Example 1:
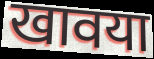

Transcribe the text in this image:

खावया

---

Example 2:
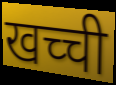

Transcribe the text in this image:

खच्ची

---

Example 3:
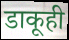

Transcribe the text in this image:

डाकूही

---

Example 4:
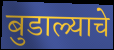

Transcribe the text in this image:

बुडाल्याचे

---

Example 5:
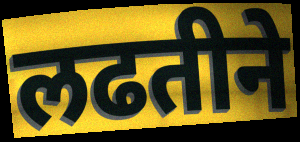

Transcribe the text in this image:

लढतीने